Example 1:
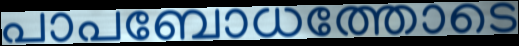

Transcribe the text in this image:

പാപബോധത്തോടെ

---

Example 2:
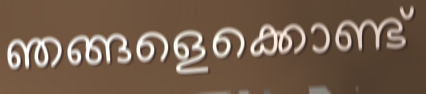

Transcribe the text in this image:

ഞങ്ങളെക്കൊണ്ട്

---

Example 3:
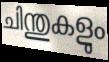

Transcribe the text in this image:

ചിന്തുകളും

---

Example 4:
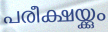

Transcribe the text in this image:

പരീക്ഷയ്ക്കും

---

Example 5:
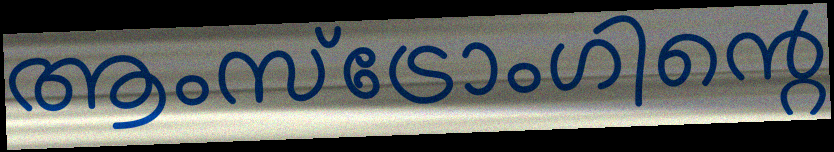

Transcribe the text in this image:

ആംസ്ട്രോംഗിന്റെ